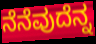
ನೆನೆವುದೆನ್ನ